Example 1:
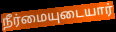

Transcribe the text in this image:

நீர்மையுடையார்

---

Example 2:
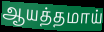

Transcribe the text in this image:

ஆயத்தமாய்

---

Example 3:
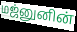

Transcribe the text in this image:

மஜ்னுனின்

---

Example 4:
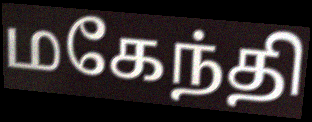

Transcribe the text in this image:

மகேந்தி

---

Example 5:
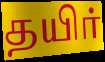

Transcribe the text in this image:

தயிர்